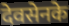
देवसेनके